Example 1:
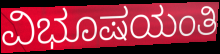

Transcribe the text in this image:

ವಿಭೂಷಯಂತಿ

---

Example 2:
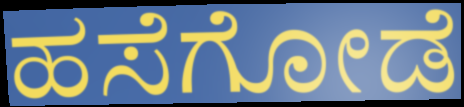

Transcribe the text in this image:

ಹಸೆಗೋಡೆ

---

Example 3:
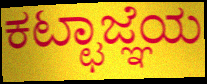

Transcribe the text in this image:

ಕಟ್ಟಾಜ್ಞೆಯ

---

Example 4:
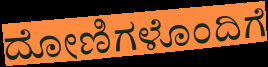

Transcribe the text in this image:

ದೋಣಿಗಳೊಂದಿಗೆ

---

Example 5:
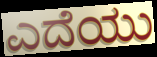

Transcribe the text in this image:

ಎದೆಯು